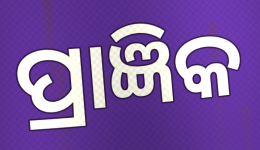
ପ୍ରାଜ୍ଞିକ